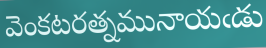
వెంకటరత్నమునాయఁడు